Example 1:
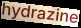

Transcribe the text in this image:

hydrazine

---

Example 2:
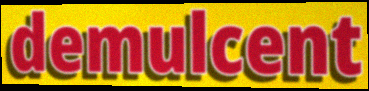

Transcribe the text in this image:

demulcent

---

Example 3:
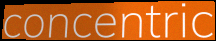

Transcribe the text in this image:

concentric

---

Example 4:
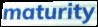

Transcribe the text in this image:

maturity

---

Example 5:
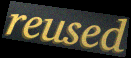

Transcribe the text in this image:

reused